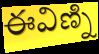
ఈవిణ్ని